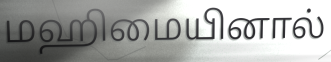
மஹிமையினால்